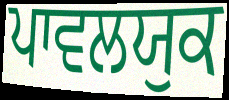
ਪਾਵਲਯੁਕ